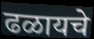
ढळायचे